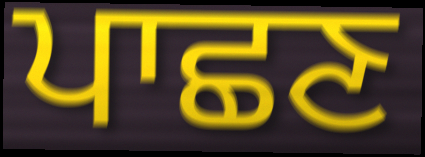
ਪਾਛਣ